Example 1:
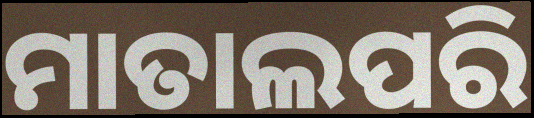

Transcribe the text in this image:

ମାତାଲପରି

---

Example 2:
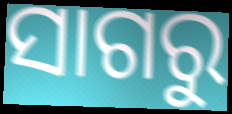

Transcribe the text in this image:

ସାଗରୁ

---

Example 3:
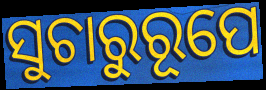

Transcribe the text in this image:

ସୁଚାରୁରୂପେ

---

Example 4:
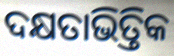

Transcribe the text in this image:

ଦକ୍ଷତାଭିତ୍ତିକ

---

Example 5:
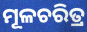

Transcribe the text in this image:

ମୂଳଚରିତ୍ର